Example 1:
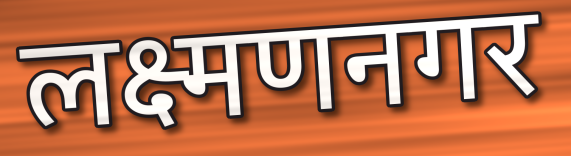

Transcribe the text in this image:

लक्ष्मणनगर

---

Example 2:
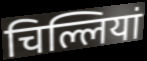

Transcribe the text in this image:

चिल्लियां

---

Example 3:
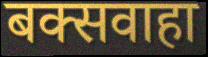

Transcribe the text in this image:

बक्सवाहा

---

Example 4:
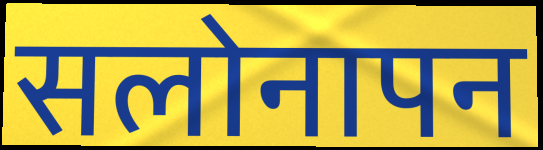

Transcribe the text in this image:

सलोनापन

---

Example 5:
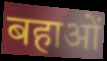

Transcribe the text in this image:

बहाओं